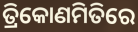
ତ୍ରିକୋଣମିତିରେ